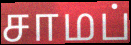
சாமப்